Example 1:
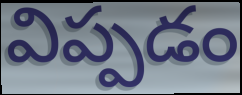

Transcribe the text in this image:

విప్పడం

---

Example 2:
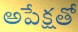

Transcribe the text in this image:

అపేక్షతో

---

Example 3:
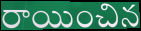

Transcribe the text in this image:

రాయించిన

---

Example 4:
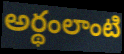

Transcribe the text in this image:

అర్థంలాంటి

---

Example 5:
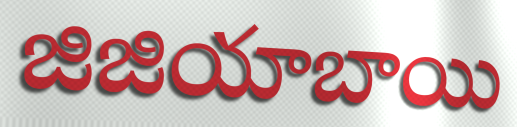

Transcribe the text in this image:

జిజియాబాయి